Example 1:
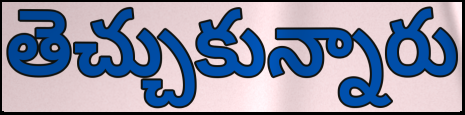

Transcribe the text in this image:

తెచ్చుకున్నారు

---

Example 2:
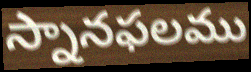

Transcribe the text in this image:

స్నానఫలము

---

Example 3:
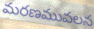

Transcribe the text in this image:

మరణమువలన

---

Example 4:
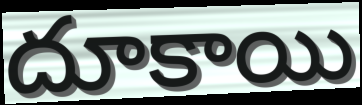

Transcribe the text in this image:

దూకాయి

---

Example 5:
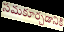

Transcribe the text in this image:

సమకూర్చడానికి